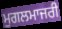
ਮੁਗਲਮਾਜਰੀ